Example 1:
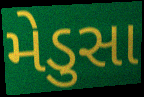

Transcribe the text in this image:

મેડુસા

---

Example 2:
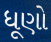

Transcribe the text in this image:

ધૂણો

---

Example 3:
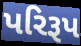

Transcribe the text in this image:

પરિરૂપ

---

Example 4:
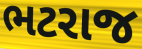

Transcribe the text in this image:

ભટરાજ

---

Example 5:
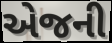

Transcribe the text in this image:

એજની